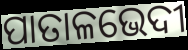
ପାତାଳଭେଦୀ